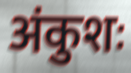
अंकुशः